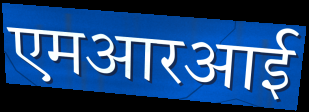
एमआरआई